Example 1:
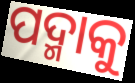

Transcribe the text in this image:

ପଦ୍ମାକୁ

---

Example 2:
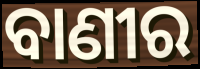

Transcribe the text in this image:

ବାଣୀର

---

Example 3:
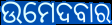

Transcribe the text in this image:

ଉମେଦବାର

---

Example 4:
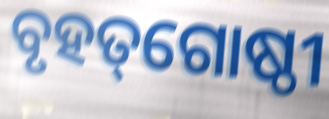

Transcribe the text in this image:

ବୃହତ୍‌ଗୋଷ୍ଠୀ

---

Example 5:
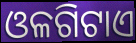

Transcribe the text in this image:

ଓଳଗିଟାଏ